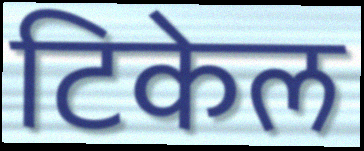
टिकेल